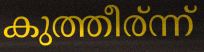
കുത്തീര്ന്ന്